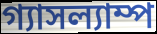
গ্যাসল্যাম্প